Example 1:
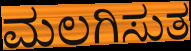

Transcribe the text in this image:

ಮಲಗಿಸುತ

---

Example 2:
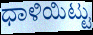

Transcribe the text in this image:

ಧಾಳಿಯಿಟ್ಟು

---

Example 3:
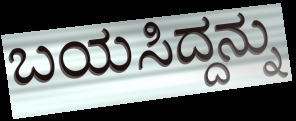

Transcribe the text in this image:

ಬಯಸಿದ್ದನ್ನು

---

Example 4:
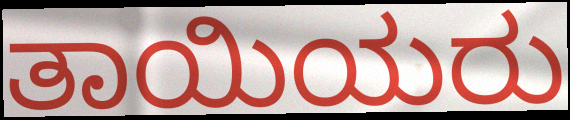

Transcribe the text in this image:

ತಾಯಿಯರು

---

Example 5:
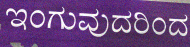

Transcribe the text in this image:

ಇಂಗುವುದರಿಂದ